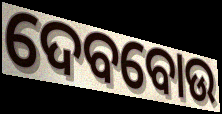
ଦେବବୋଉ